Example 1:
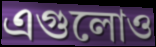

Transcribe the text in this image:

এগুলোও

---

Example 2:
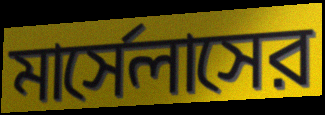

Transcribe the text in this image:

মার্সেলাসের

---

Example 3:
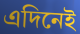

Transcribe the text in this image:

এদিনেই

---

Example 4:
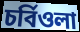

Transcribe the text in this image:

চর্বিওলা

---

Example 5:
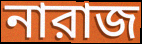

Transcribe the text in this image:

নারাজ